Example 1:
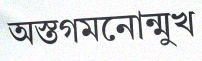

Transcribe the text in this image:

অস্তগমনোন্মুখ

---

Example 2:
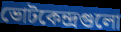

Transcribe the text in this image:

ভোটকেন্দ্রগুলো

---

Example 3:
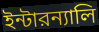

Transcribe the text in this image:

ইন্টারন্যালি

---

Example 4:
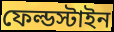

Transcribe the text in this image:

ফেল্ডস্টাইন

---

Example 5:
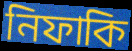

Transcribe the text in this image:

নিফাকি